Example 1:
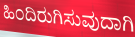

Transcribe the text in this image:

ಹಿಂದಿರುಗಿಸುವುದಾಗಿ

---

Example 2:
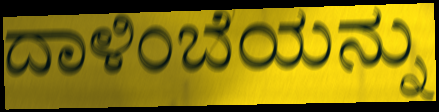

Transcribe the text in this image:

ದಾಳಿಂಬೆಯನ್ನು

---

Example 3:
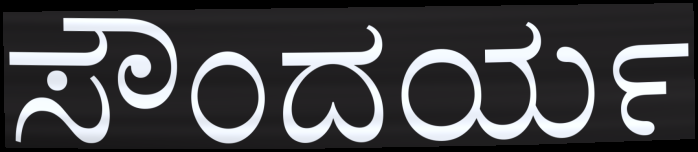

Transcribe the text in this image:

ಸೌಂದರ್ಯ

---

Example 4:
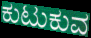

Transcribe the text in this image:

ಕುಟುಕುವ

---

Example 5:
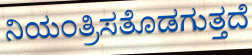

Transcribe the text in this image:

ನಿಯಂತ್ರಿಸತೊಡಗುತ್ತದೆ